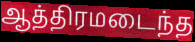
ஆத்திரமடைந்த